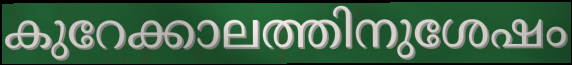
കുറേക്കാലത്തിനുശേഷം